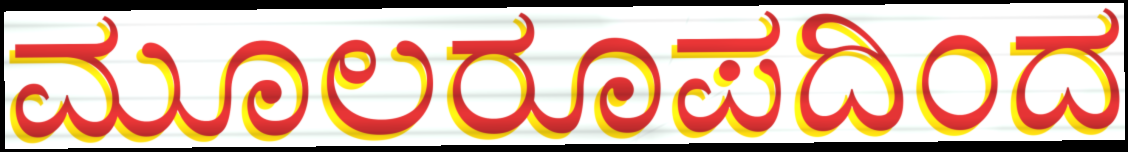
ಮೂಲರೂಪದಿಂದ